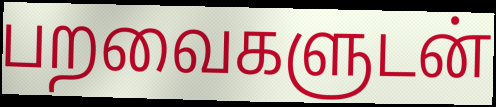
பறவைகளுடன்